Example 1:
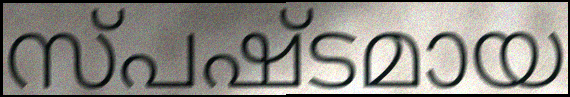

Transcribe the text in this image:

സ്പഷ്ടമായ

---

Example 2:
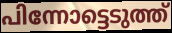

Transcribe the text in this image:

പിന്നോട്ടെടുത്ത്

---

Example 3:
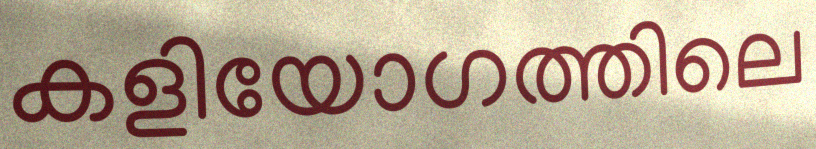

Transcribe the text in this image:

കളിയോഗത്തിലെ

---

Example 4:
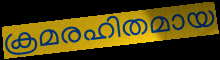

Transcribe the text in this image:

ക്രമരഹിതമായ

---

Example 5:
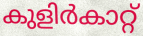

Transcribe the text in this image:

കുളിർകാറ്റ്